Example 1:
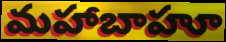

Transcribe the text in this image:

మహాబాహూ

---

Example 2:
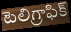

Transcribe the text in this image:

టెలిగ్రాఫిక్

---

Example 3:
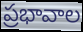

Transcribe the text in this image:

ప్రభావాల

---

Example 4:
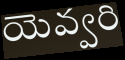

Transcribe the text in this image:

యెవ్వరి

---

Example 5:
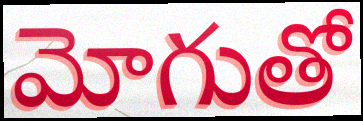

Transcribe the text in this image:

మోగుతో